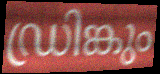
ഡ്രിങ്കും